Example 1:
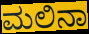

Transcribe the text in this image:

ಮಲಿನಾ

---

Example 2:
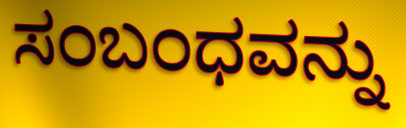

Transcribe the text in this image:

ಸಂಬಂಧವನ್ನು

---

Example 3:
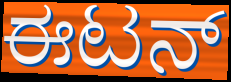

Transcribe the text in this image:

ಈಟನ್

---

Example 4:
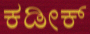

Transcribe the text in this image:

ಕಡೀಕ್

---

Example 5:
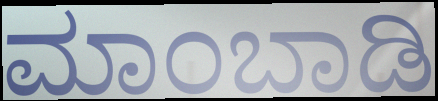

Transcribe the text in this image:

ಮಾಂಬಾಡಿ